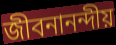
জীবনানন্দীয়